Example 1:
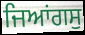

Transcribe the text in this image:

ਜਿਆਂਗਸੁ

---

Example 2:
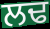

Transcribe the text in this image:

ਲਢ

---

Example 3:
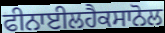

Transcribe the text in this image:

ਫੀਨਾਈਲਹੈਕਸਾਨੋਲ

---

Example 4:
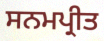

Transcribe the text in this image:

ਸਨਮਪ੍ਰੀਤ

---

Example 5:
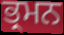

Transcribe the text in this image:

ਭ੍ਰਮਨ